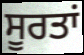
ਸੂਰਤਾਂ